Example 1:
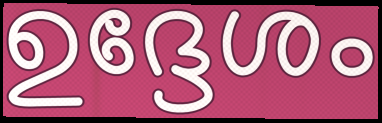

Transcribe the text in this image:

ഉദ്ദേശം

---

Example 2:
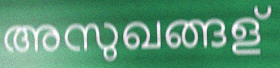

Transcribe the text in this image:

അസുഖങ്ങള്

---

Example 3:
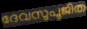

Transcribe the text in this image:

ദേവസുപൂജിത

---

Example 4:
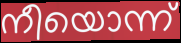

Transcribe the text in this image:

നീയൊന്ന്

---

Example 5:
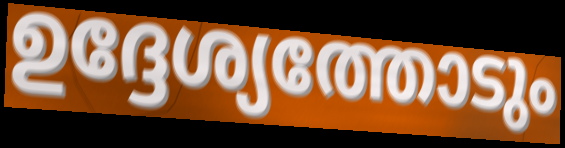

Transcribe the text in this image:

ഉദ്ദേശ്യത്തോടും